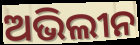
ଅଭିଲୀନ